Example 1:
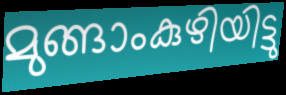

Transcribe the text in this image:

മുങ്ങാംകുഴിയിട്ടു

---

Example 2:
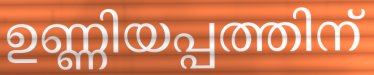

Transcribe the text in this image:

ഉണ്ണിയപ്പത്തിന്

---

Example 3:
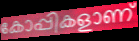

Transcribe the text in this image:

കോപ്പികളാണ്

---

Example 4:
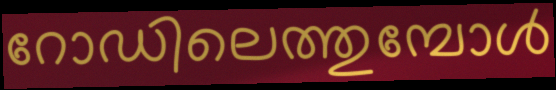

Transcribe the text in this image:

റോഡിലെത്തുമ്പോൾ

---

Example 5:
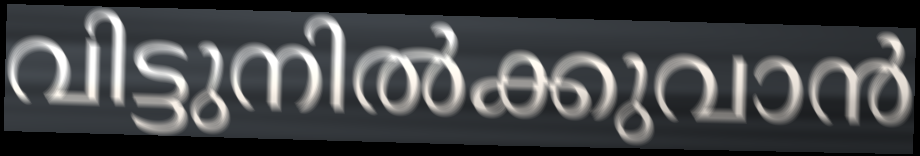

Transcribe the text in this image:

വിട്ടുനിൽക്കുവാൻ